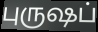
புருஷப்